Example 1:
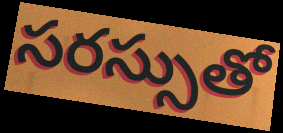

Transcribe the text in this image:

సరస్సుతో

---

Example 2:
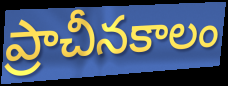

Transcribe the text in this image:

ప్రాచీనకాలం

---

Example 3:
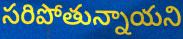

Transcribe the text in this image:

సరిపోతున్నాయని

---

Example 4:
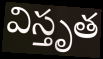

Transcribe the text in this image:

విస్తృత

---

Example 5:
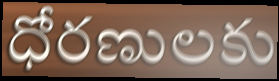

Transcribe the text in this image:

ధోరణులకు